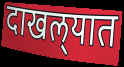
दाखल्यात